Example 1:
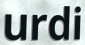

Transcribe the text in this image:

urdi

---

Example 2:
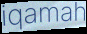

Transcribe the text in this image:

iqamah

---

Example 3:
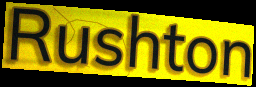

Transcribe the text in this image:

Rushton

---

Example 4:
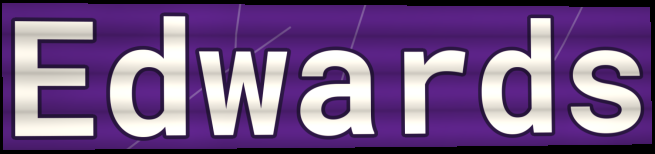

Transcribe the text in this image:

Edwards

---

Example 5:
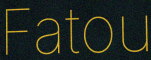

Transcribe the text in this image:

Fatou